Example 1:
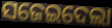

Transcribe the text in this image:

ସଜେଇଦେଲା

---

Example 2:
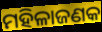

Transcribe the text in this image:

ମହିଳାଜଣକ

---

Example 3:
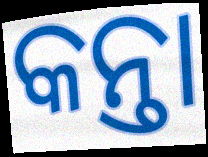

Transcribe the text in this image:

କନ୍ତା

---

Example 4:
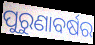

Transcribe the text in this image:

ପୁରୁଣାବର୍ଷର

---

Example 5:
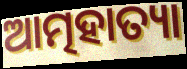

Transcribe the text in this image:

ଆତ୍ମହାତ୍ୟା